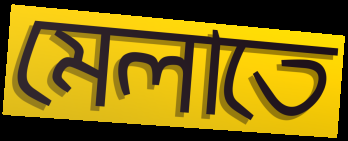
মেলাতে